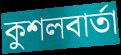
কুশলবার্তা